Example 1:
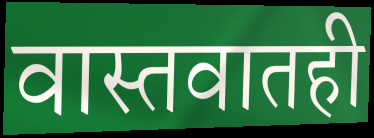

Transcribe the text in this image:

वास्तवातही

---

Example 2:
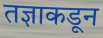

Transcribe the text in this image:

तज्ञाकडून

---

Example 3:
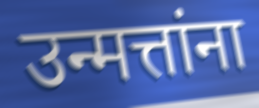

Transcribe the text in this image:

उन्मत्तांना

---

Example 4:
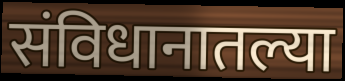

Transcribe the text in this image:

संविधानातल्या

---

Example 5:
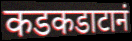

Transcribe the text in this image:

कडकडाटानं